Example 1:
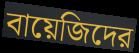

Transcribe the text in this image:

বায়েজিদের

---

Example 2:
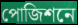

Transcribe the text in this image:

পোজিশনে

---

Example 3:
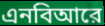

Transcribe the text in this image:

এনবিআরে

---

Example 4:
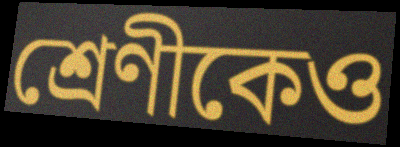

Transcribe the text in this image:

শ্রেণীকেও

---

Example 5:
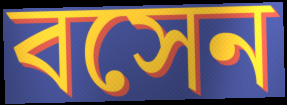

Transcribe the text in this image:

বসেন